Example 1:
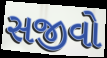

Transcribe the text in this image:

સજીવો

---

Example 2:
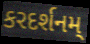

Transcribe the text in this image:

કરદર્શનમ્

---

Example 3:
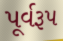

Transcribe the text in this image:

પૂર્વરૂપ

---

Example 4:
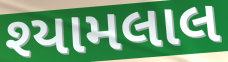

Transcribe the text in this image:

શ્યામલાલ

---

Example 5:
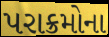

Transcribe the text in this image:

પરાક્રમોના